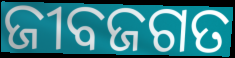
ଜୀବଜଗତ